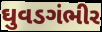
ઘુવડગંભીર